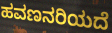
ಹವಣನರಿಯದೆ